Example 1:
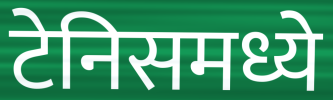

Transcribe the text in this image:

टेनिसमध्ये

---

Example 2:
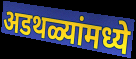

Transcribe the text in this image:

अडथळ्यांमध्ये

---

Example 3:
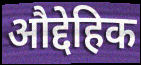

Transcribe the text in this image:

औद्देहिक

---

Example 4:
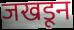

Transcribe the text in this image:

जखडून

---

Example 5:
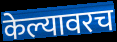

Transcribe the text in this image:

केल्यावरच